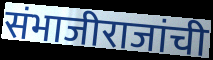
संभाजीराजांची